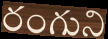
రంగుని